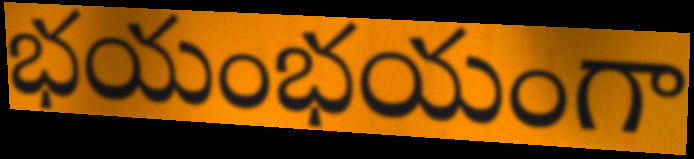
భయంభయంగా